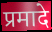
प्रमादे